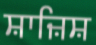
ਸ਼ਾਜ਼ਿਸ਼